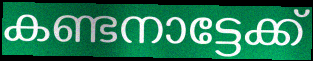
കണ്ടനാട്ടേക്ക്